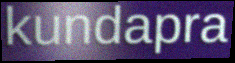
kundapra